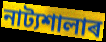
নাট্যশালাৰ